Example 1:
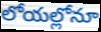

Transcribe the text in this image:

లోయల్లోనూ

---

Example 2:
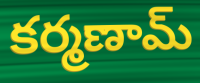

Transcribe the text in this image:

కర్మణామ్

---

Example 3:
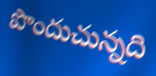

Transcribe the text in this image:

పొందుచున్నది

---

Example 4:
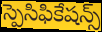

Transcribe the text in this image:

స్పెసిఫికేషన్స్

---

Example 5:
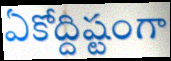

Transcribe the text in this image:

ఏకోద్దిష్టంగా